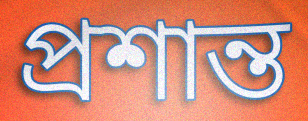
প্রশান্ত